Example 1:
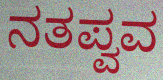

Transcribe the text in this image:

ನತಪ್ವವ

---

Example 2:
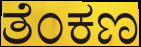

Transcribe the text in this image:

ತೆಂಕಣ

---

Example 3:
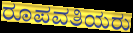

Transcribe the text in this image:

ರೂಪವತಿಯರು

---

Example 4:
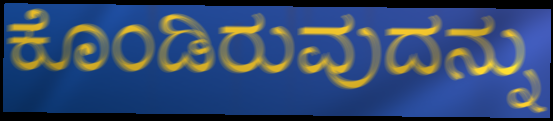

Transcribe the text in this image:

ಕೊಂಡಿರುವುದನ್ನು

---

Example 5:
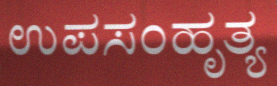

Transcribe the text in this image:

ಉಪಸಂಹೃತ್ಯ